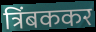
त्रिंबककर